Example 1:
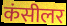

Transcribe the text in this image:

कंसीलर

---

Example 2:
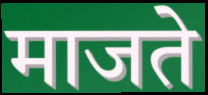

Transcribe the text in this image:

माजते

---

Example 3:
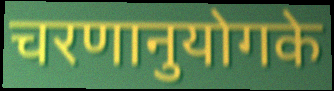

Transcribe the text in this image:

चरणानुयोगके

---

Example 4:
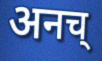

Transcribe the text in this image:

अनच्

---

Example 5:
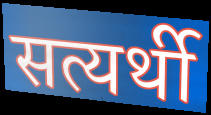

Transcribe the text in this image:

सत्यर्थी